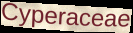
Cyperaceae